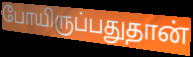
போயிருப்பதுதான்